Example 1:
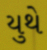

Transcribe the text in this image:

યુથે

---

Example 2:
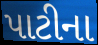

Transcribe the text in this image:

પાટીના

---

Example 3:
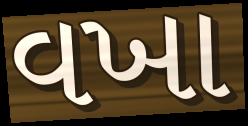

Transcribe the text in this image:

વખા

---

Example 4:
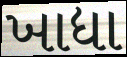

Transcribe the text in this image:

ખાદ્યા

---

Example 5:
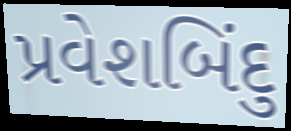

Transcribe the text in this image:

પ્રવેશબિંદુ